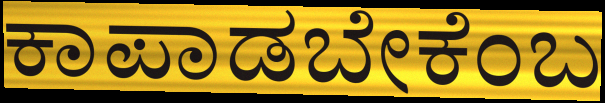
ಕಾಪಾಡಬೇಕೆಂಬ